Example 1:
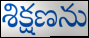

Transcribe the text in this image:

శిక్షణను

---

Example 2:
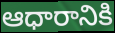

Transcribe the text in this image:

ఆధారానికి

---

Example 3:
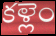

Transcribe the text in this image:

కళ్లెం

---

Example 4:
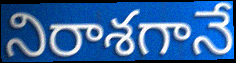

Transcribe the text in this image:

నిరాశగానే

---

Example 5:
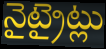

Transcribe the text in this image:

నైట్రైట్లు